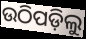
ଉଠିପଡ଼ିଲୁ